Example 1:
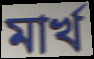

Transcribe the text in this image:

মার্খ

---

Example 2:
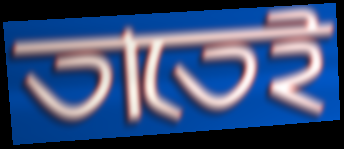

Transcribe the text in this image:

তাতেই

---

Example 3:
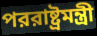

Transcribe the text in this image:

পররাষ্ট্রমন্ত্রী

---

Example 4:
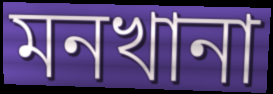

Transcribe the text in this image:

মনখানা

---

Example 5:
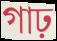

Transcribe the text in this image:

গাঢ়